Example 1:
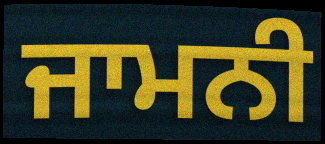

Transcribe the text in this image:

ਜਾਮਨੀ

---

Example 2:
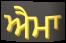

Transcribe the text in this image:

ਐਮਾ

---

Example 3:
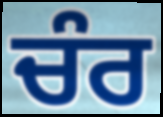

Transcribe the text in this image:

ਚੰਰ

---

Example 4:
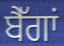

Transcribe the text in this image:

ਬੈੱਗਾਂ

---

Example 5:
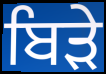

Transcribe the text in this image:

ਬਿੜੇ